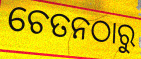
ଚେତନଠାରୁ